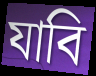
যাবি